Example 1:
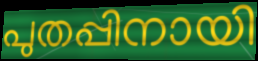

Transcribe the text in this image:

പുതപ്പിനായി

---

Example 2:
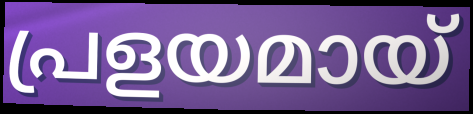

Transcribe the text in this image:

പ്രളയമായ്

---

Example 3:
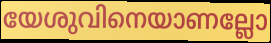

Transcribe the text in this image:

യേശുവിനെയാണല്ലോ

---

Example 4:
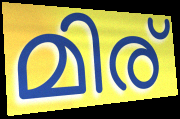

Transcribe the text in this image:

മിര്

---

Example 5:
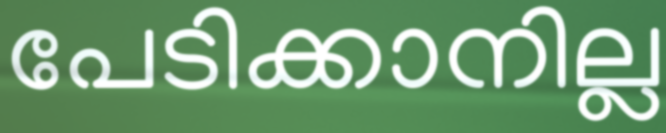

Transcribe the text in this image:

പേടിക്കാനില്ല